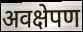
अवक्षेपण